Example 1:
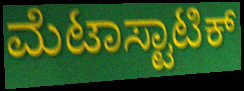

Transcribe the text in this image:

ಮೆಟಾಸ್ಟಾಟಿಕ್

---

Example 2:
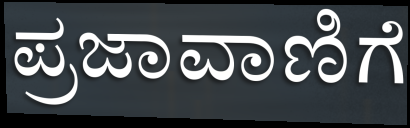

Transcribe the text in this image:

ಪ್ರಜಾವಾಣಿಗೆ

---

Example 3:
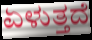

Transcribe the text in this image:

ಏಳುತ್ತದೆ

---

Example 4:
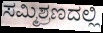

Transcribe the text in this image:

ಸಮ್ಮಿಶ್ರಣದಲ್ಲಿ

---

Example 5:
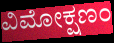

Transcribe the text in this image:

ವಿಮೋಕ್ಷಣಂ